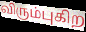
விரும்புகிற